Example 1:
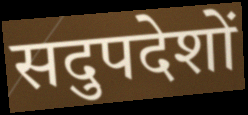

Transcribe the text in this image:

सदुपदेशों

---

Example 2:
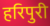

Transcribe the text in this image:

हरिपुरी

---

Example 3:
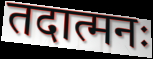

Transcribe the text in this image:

तदात्मनः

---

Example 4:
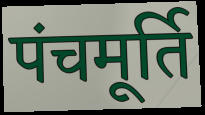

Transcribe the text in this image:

पंचमूर्ति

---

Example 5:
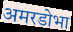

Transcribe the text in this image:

अमरडोभा